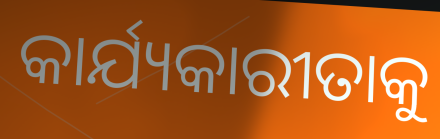
କାର୍ଯ୍ୟକାରୀତାକୁ